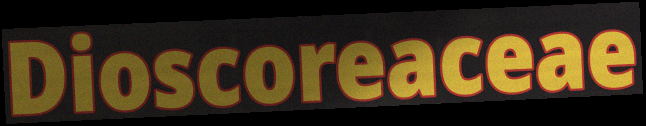
Dioscoreaceae